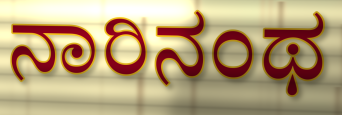
ನಾರಿನಂಥ